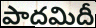
పాదమిదీ